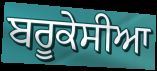
ਬਰੂਕੇਸੀਆ